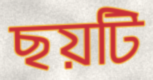
ছয়টি